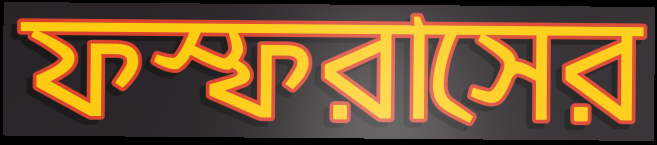
ফস্ফরাসের